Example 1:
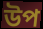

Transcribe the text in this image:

উপ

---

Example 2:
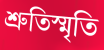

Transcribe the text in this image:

শ্রুতিস্মৃতি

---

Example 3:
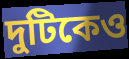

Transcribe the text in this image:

দুটিকেও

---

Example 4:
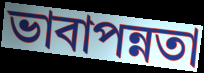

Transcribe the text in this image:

ভাবাপন্নতা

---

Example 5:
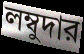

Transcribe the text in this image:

লম্বুদার